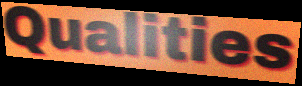
Qualities